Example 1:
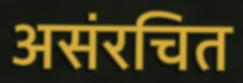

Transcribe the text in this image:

असंरचित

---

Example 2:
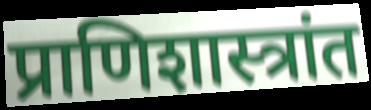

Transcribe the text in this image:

प्राणिशास्त्रांत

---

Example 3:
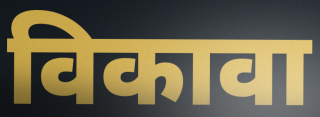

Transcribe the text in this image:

विकावा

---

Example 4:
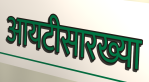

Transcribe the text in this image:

आयटीसारख्या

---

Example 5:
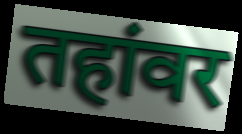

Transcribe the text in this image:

तहांवर